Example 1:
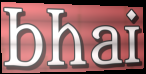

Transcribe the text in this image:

bhai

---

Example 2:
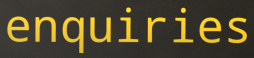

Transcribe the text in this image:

enquiries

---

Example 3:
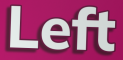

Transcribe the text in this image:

Left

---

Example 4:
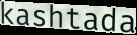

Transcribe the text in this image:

kashtada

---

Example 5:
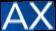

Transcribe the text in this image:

AX